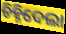
ଚିହ୍ନିଦେଲା